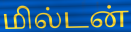
மில்டன்